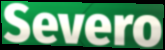
Severo